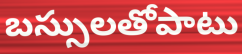
బస్సులతోపాటు